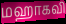
மஹாகவி